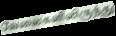
வேலைகளிலிருந்து